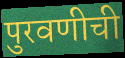
पुरवणीची